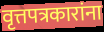
वृत्तपत्रकारांना